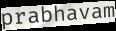
prabhavam